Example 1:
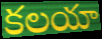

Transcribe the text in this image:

కలయా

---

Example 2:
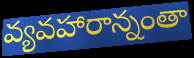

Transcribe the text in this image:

వ్యవహారాన్నంతా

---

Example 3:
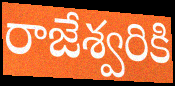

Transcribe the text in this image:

రాజేశ్వరికి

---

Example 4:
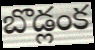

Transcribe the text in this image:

బొడ్లంక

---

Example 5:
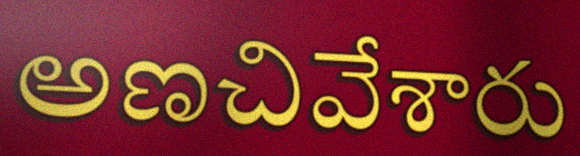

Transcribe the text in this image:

అణచివేశారు